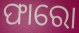
ଫାରୋ